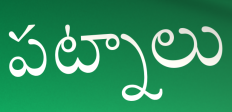
పట్నాలు